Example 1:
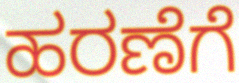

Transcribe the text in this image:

ಹರಣೆಗೆ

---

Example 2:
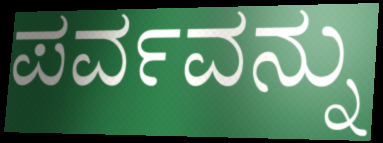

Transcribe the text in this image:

ಪರ್ವವನ್ನು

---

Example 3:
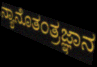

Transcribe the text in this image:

ನ್ಯಾನೊತಂತ್ರಜ್ಞಾನ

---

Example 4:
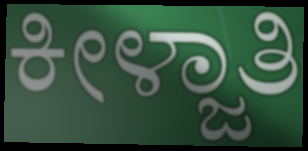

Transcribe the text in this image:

ಕೀಳ್ಜಾತಿ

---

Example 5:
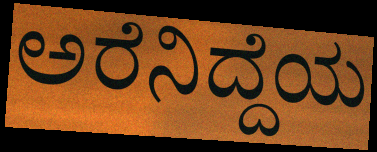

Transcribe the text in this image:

ಅರೆನಿದ್ದೆಯ